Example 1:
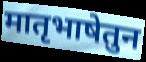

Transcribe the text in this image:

मातृभाषेतुन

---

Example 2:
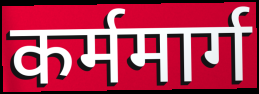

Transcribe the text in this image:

कर्ममार्ग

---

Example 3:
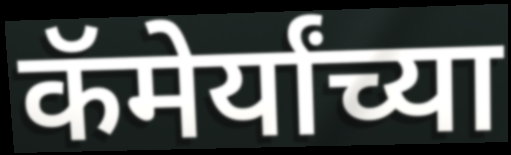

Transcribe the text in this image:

कॅमेर्यांच्या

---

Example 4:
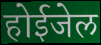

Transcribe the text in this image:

होईजेल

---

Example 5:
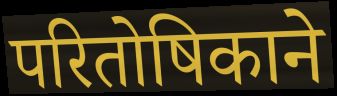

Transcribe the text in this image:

परितोषिकाने